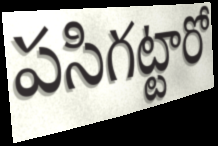
పసిగట్టారో